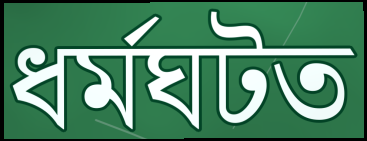
ধৰ্মঘটত